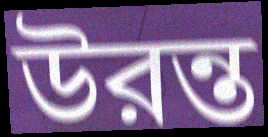
উরন্ত